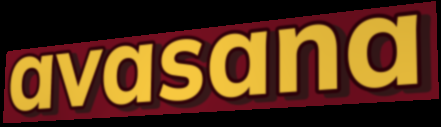
avasana